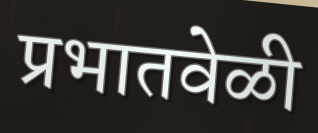
प्रभातवेळी